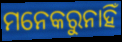
ମନେକରୁନାହିଁ